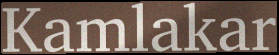
Kamlakar